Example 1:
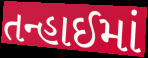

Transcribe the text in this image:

તન્હાઈમાં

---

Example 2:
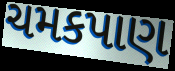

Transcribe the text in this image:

ચમકપાણ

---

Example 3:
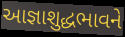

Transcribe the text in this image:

આજ્ઞાશુદ્ધભાવને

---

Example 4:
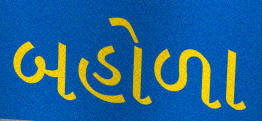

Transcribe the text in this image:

બહોળા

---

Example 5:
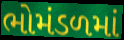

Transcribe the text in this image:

ભોમંડળમાં